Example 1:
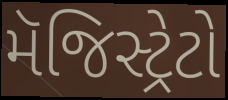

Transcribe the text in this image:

મૅજિસ્ટ્રેટો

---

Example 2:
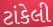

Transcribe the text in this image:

ટાંકેલી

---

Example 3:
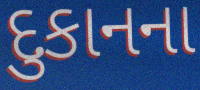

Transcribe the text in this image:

દુકાનના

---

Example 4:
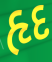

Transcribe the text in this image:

હૃદ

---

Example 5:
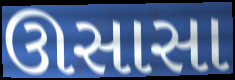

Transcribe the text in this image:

ઊસાસા